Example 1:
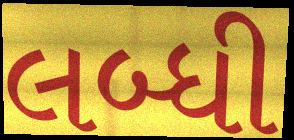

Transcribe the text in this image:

લબ્ધી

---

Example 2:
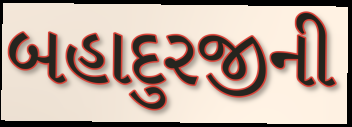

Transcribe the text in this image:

બહાદુરજીની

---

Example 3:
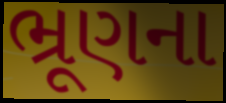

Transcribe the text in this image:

ભ્રૂણના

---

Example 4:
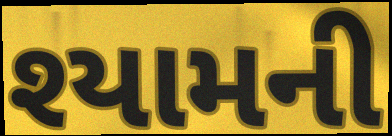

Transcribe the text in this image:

શ્યામની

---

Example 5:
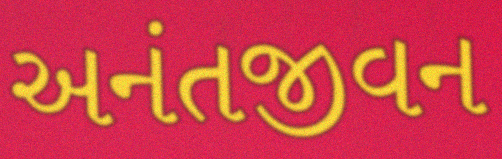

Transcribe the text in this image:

અનંતજીવન